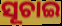
ସୂଚାଇ